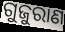
ଗୁଜୁରାଣ